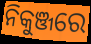
ନିକୁଞ୍ଜରେ